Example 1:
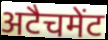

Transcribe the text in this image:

अटैचमेंट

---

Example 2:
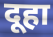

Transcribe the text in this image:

दूहा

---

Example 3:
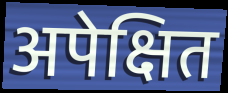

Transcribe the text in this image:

अपेक्षित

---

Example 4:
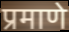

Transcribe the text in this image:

प्रमाणे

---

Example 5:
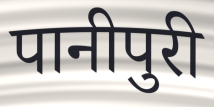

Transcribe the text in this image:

पानीपुरी